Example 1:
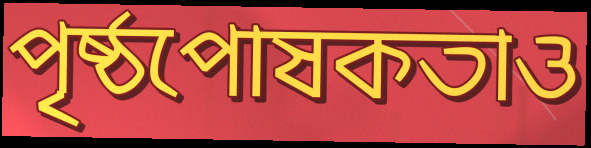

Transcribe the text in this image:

পৃষ্ঠপোষকতাও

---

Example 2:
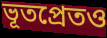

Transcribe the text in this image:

ভূতপ্রেতও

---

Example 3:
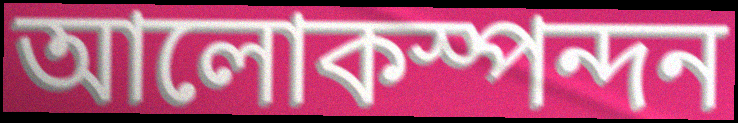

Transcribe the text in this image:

আলোকস্পন্দন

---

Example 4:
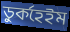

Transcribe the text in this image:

ডুর্কহেইম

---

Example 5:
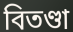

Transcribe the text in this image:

বিতণ্ডা